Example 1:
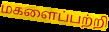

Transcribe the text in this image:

மகளைப்பற்றி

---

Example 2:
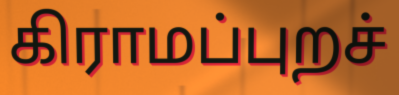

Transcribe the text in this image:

கிராமப்புறச்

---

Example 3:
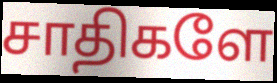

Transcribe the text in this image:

சாதிகளே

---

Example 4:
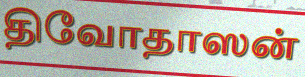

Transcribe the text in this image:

திவோதாஸன்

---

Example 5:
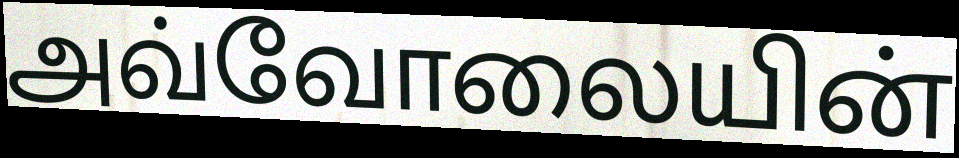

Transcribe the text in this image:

அவ்வோலையின்